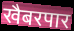
खैबरपार